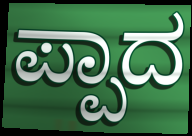
ಪ್ಪಾದ